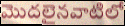
మొదలైనవాటిలో